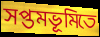
সপ্তমভূমিতে